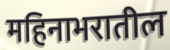
महिनाभरातील